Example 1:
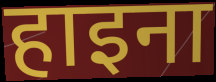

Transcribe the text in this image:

हाइना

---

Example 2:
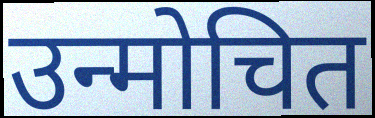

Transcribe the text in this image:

उन्मोचित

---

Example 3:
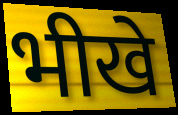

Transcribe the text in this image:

भीखे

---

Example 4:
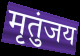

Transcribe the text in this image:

मृतुंजय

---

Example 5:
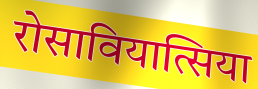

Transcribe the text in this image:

रोसावियात्सिया